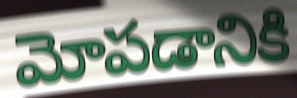
మోపడానికి